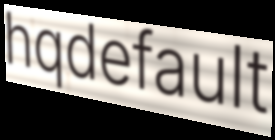
hqdefault